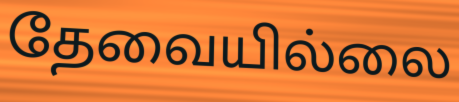
தேவையில்லை